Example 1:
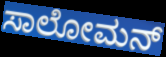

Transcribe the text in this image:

ಸಾಲೋಮನ್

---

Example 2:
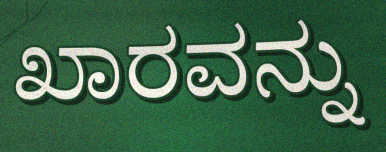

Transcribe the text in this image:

ಖಾರವನ್ನು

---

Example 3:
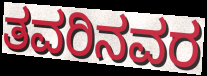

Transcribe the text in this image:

ತವರಿನವರ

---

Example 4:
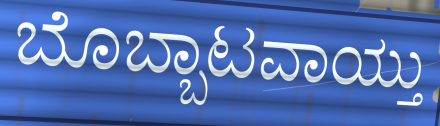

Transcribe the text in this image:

ಬೊಬ್ಬಾಟವಾಯ್ತು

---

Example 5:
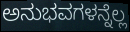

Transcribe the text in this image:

ಅನುಭವಗಳನ್ನೆಲ್ಲ